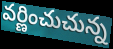
వర్ణించుచున్న